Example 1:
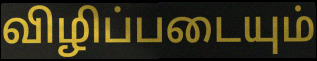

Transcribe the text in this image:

விழிப்படையும்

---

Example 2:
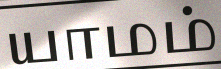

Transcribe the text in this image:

யாமம்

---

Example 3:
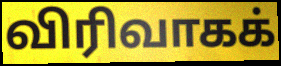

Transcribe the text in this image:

விரிவாகக்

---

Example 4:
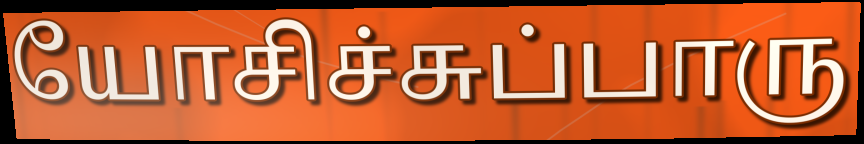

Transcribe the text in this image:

யோசிச்சுப்பாரு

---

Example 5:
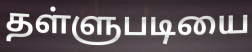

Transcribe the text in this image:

தள்ளுபடியை